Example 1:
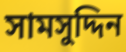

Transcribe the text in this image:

সামসুদ্দিন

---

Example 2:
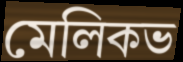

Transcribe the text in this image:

মেলিকভ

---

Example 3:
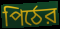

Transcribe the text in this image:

পিঠের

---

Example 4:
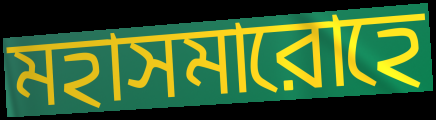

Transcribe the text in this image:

মহাসমারোহে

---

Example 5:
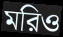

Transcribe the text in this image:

মরিও